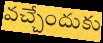
వచ్చేందుకు